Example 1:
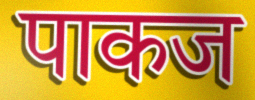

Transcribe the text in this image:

पाकज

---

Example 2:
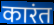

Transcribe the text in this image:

कारंत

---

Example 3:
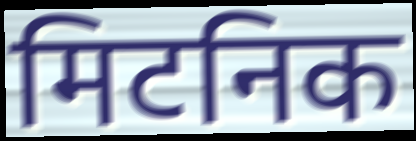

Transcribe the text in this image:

मिटनिक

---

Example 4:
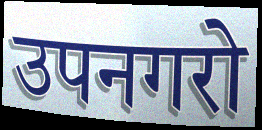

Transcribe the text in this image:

उपनगरो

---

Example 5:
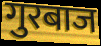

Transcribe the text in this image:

गुरबाज